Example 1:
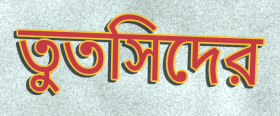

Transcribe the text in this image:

তুতসিদের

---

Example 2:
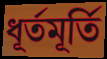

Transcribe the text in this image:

ধূর্তমূর্তি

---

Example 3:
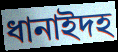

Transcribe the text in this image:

ধানাইদহ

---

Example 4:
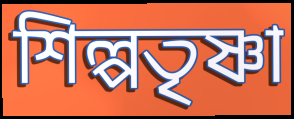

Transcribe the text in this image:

শিল্পতৃষ্ণা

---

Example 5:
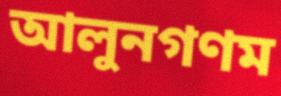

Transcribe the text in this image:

আলুনগণম